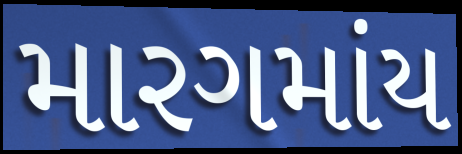
મારગમાંય